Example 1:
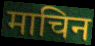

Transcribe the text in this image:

माचिन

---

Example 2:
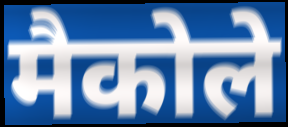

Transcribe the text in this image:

मैकोले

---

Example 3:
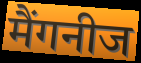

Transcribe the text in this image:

मैंगनीज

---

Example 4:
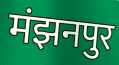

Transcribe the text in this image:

मंझनपुर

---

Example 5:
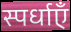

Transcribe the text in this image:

स्पर्धाएँ